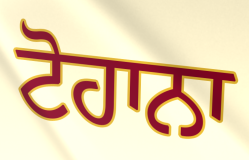
ਟੋਹਾਨਾ